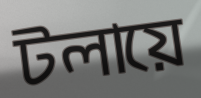
টলায়ে